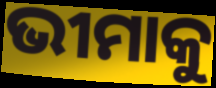
ଭୀମାକୁ